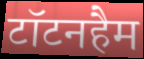
टॉटनहैम